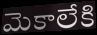
మెకాలేకి